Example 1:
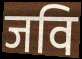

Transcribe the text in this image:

जवि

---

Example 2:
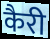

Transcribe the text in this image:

कैरी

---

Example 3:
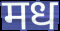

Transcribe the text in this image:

मध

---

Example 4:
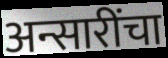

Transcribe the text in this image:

अन्सारींचा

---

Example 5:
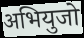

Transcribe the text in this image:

अभियुजो